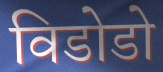
विडोडो